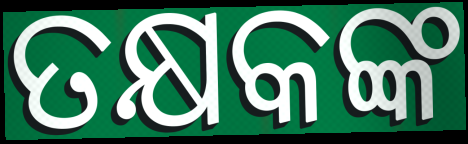
ତକ୍ଷକଙ୍କ